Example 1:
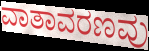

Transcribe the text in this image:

ವಾತಾವರಣವು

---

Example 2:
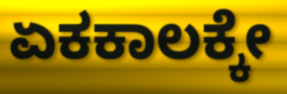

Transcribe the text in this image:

ಏಕಕಾಲಕ್ಕೇ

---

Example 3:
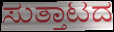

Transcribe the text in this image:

ಸುತ್ತಾಟದ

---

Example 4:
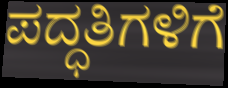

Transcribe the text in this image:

ಪದ್ಧತಿಗಳಿಗೆ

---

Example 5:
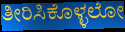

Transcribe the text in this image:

ತೀರಿಸಿಕೊಳ್ಳಲೋ